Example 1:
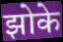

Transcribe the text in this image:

झोके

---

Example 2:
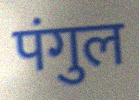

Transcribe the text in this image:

पंगुल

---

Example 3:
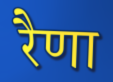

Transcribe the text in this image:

रैणा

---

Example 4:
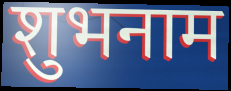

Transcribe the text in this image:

शुभनाम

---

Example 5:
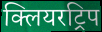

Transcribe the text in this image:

क्लियरट्रिप